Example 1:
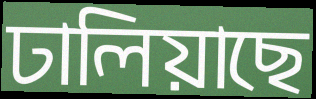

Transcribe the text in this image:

ঢালিয়াছে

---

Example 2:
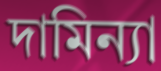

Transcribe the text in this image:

দামিন্যা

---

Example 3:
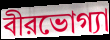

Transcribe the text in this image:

বীরভোগ্যা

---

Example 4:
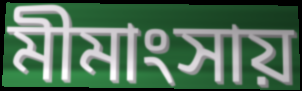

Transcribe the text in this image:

মীমাংসায়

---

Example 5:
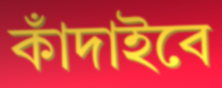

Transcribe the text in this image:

কাঁদাইবে